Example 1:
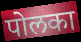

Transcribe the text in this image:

पोलका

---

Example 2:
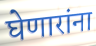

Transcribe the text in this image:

घेणारांना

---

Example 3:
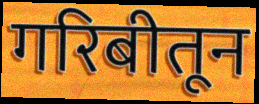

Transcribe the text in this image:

गरिबीतून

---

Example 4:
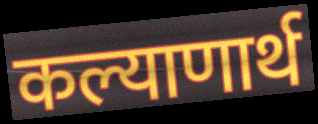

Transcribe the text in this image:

कल्याणार्थ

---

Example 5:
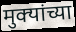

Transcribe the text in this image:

मुक्यांच्या